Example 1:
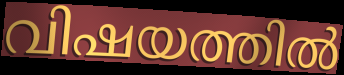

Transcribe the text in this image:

വിഷയത്തിൽ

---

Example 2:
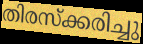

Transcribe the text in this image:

തിരസ്ക്കരിച്ചു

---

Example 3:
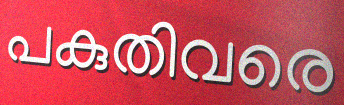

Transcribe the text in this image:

പകുതിവരെ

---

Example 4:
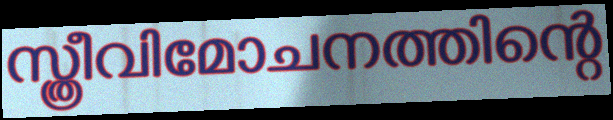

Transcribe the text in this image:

സ്ത്രീവിമോചനത്തിന്റെ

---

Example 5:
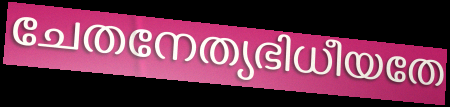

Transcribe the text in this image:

ചേതനേത്യഭിധീയതേ